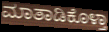
ಮಾತಾಡಿಕೊಳ್ತಾ